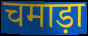
चमाड़ा